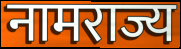
नामराज्य